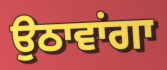
ਉਠਾਵਾਂਗਾ